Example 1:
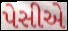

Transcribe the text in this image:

પેસીએ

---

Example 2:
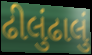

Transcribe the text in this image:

ઢીલુંઢાલું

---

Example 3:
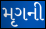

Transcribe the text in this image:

મૃગની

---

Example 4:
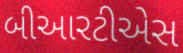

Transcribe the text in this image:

બીઆરટીએસ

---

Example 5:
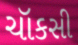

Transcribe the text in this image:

ચૉકસી